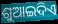
ଶୁଆଇଦିଏ